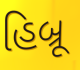
હિબ્રૂ